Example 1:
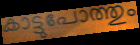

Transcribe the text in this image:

കാട്ടുപോത്തും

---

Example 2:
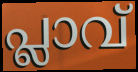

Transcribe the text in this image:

പ്ലാവ്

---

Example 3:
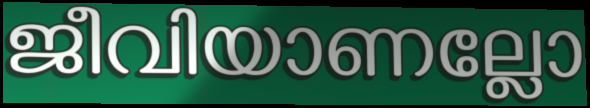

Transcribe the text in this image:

ജീവിയാണല്ലോ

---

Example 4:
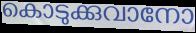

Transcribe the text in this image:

കൊടുക്കുവാനോ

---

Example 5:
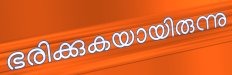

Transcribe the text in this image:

ഭരിക്കുകയായിരുന്നു